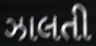
ઝાલતી